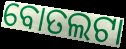
ବୋତଲଟା